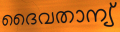
ദൈവതാന്യ്